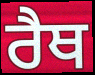
ਰੈਥ